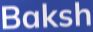
Baksh